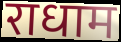
राधाम